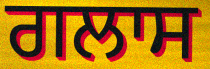
ਗਲਾਸ